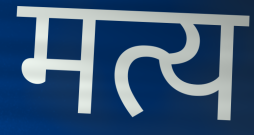
मत्य